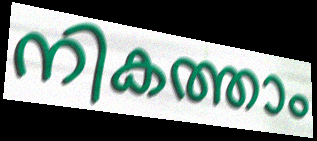
നികത്താം